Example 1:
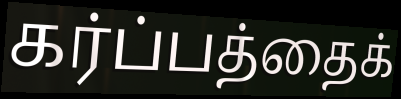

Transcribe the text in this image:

கர்ப்பத்தைக்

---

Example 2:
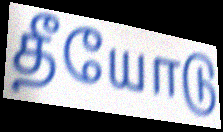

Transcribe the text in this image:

தீயோடு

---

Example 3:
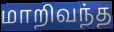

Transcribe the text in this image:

மாறிவந்த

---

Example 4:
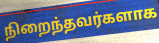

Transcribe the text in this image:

நிறைந்தவர்களாக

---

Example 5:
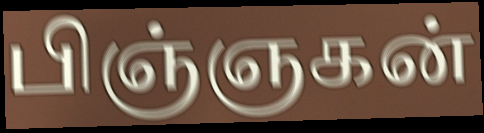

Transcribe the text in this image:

பிஞ்ஞகன்